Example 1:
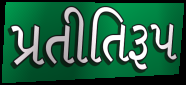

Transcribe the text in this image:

પ્રતીતિરૂપ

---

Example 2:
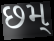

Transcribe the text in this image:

છમ્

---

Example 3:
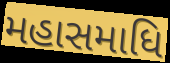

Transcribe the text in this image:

મહાસમાધિ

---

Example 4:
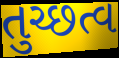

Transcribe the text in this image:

તુચ્છત્વ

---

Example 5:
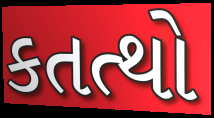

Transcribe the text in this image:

કતત્થો